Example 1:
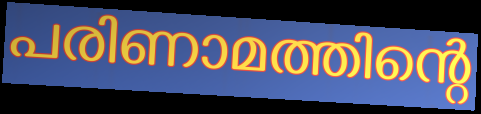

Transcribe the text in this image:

പരിണാമത്തിന്റെ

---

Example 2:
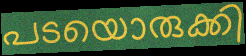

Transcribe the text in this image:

പടയൊരുക്കി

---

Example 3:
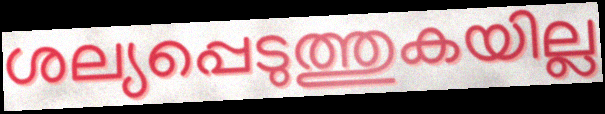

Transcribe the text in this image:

ശല്യപ്പെടുത്തുകയില്ല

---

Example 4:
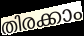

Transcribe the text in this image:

തിരക്കാം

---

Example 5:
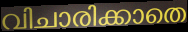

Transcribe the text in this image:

വിചാരിക്കാതെ